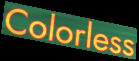
Colorless